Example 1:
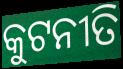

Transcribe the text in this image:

କୁଟନୀତି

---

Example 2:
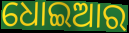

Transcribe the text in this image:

ଧୋଇଆର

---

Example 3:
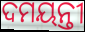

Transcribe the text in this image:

ଦମୟନ୍ତୀ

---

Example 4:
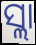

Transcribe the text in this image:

ସ୍ଲା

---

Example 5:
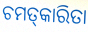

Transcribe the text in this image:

ଚମତ୍‌କାରିତା